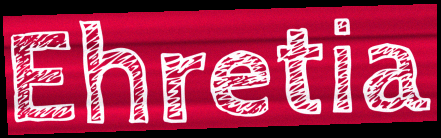
Ehretia